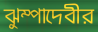
ঝুম্পাদেবীর